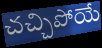
చచ్చిపోయే